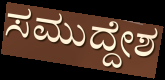
ಸಮುದ್ದೇಶ